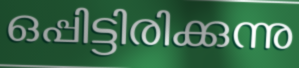
ഒപ്പിട്ടിരിക്കുന്നു